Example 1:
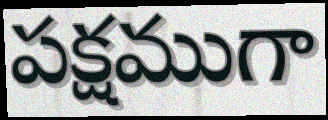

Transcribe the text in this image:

పక్షముగా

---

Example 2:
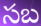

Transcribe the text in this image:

సబ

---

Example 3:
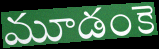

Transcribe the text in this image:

మూడంకె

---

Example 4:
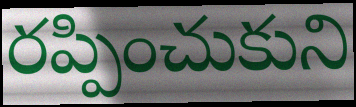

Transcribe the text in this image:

రప్పించుకుని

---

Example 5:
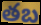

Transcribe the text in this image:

తబ